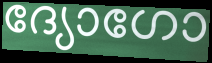
ദ്യോഗോ